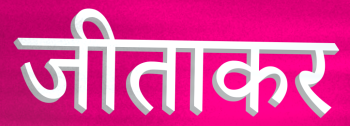
जीताकर